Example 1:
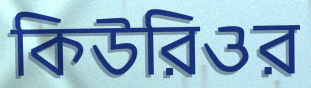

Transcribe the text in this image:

কিউরিওর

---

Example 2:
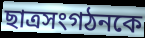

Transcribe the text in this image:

ছাত্রসংগঠনকে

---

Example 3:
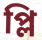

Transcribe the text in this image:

প্লি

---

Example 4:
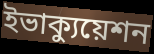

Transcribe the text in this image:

ইভাক্যুয়েশন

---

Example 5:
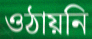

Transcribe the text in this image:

ওঠায়নি